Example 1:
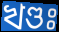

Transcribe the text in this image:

খণ্ডঃ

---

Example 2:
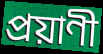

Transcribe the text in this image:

প্রয়াণী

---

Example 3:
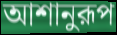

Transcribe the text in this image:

আশানুরূপ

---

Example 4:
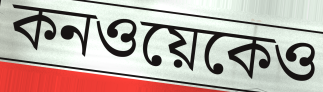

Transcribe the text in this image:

কনওয়েকেও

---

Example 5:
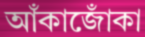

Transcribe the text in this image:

আঁকাজোঁকা